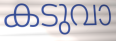
കടുവാ